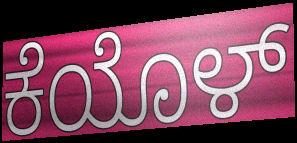
ಕೆಯೊಳ್